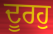
ਦੂਰਹੁ